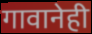
गावानेही